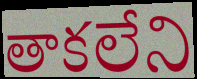
తాకలేని